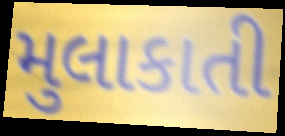
મુલાકાતી